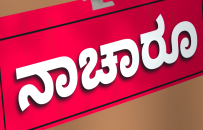
ನಾಚಾರೂ